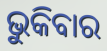
ଭୁକିବାର